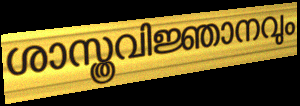
ശാസ്ത്രവിജ്ഞാനവും